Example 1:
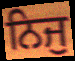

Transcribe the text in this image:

ਨਿਜੁ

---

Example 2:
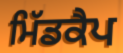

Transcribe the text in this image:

ਮਿੱਡਕੈਪ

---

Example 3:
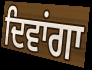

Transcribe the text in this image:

ਦਿਵਾਂਗਾ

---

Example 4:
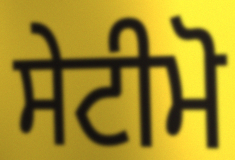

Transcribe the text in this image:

ਸੇਟੀਮੋ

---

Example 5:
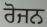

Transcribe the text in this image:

ਰੋਜਨ